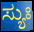
ಸ್ಯುಃ